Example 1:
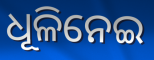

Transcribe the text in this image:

ଧୂଳିନେଇ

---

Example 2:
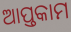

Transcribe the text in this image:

ଆପ୍ତକାମ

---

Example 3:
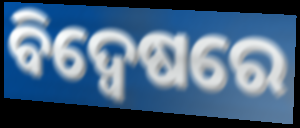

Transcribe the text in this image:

ବିଦ୍ଵେଷରେ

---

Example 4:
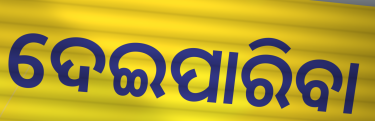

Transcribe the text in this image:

ଦେଇପାରିବା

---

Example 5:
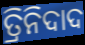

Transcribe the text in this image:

ତ୍ରିନିଦାଦ